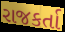
રાજકર્તા